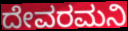
ದೇವರಮನಿ